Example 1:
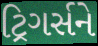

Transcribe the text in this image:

ટ્રિગર્સને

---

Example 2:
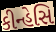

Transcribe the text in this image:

કીન્હેસિ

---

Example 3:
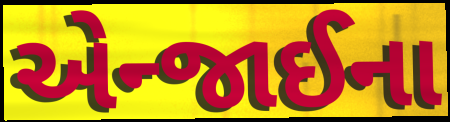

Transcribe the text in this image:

એન્જાઈના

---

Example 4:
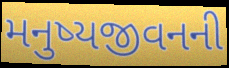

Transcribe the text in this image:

મનુષ્યજીવનની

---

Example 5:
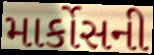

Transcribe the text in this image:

માર્કોસની